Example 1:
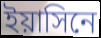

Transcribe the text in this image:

ইয়াসিনে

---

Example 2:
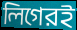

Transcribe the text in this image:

লিগেরই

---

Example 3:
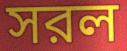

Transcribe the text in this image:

সরল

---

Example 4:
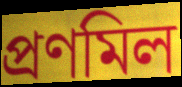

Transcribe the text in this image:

প্রণমিল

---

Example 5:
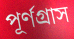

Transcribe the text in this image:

পূর্ণগ্রাস